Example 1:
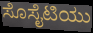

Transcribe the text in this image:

ಸೊಸೈಟಿಯು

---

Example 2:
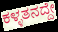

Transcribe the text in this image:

ಕಳ್ಳತನದ್ದೇ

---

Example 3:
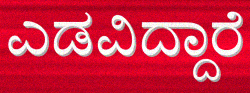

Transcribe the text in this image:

ಎಡವಿದ್ದಾರೆ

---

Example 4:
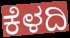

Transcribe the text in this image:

ಕೆಳದಿ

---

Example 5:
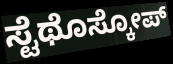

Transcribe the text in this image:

ಸ್ಟೆಥೊಸ್ಕೋಪ್